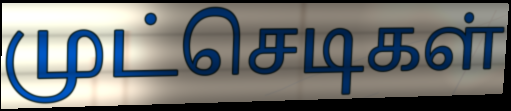
முட்செடிகள்